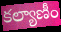
కల్యాణీం